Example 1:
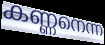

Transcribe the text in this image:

കണ്ണനെന്ന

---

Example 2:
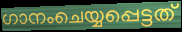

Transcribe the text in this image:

ഗാനംചെയ്യപ്പെട്ടത്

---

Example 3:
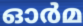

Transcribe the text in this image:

ഓർമ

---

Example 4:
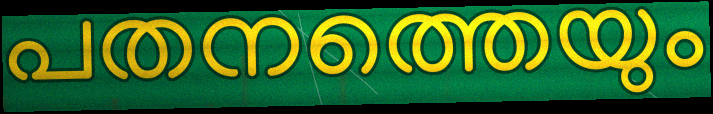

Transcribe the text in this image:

പതനത്തെയും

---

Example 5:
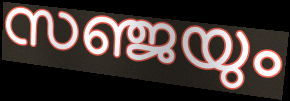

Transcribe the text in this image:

സഞ്ജയും